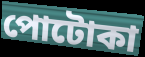
পোটোকা